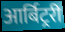
आर्बिट्ररी